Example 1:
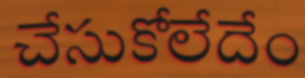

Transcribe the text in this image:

చేసుకోలేదేం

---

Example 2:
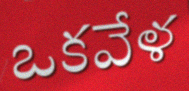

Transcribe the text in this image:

ఒకవేళ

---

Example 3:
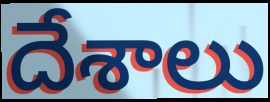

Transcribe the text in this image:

దేశాలు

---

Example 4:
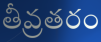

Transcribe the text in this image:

తీవ్రతరం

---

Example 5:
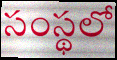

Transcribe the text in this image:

సంస్థలో